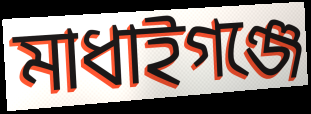
মাধাইগঞ্জে